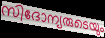
സിദോന്യരുടെയും